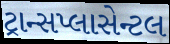
ટ્રાન્સપ્લાસેન્ટલ